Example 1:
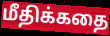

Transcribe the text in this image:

மீதிக்கதை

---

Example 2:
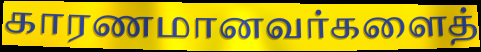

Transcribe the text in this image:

காரணமானவர்களைத்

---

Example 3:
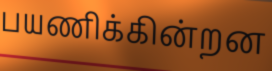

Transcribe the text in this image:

பயணிக்கின்றன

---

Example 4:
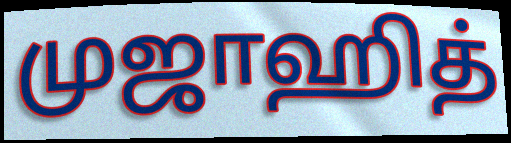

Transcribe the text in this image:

முஜாஹித்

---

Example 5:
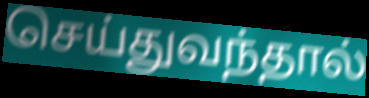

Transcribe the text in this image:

செய்துவந்தால்